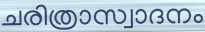
ചരിത്രാസ്വാദനം